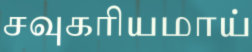
சவுகரியமாய்